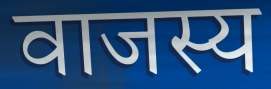
वाजस्य